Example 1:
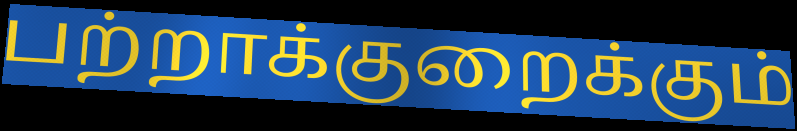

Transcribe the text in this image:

பற்றாக்குறைக்கும்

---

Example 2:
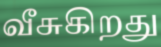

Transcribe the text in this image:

வீசுகிறது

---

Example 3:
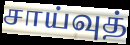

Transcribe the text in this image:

சாய்வுத்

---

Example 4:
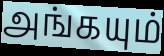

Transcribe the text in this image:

அங்கயும்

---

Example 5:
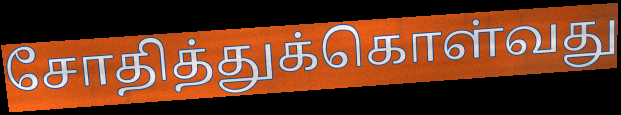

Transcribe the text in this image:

சோதித்துக்கொள்வது